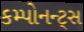
કમ્પોનન્ટ્સ